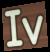
Iv